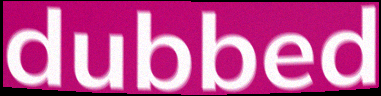
dubbed